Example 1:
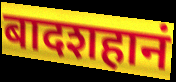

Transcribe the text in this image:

बादशहानं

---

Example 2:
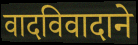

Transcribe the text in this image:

वादविवादाने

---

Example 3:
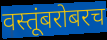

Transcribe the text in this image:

वस्तूंबरोबरच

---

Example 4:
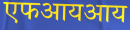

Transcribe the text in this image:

एफआयआय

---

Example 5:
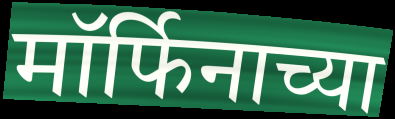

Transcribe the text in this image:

मॉर्फिनाच्या